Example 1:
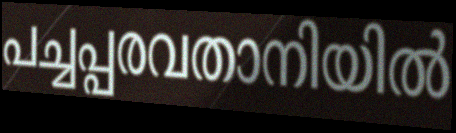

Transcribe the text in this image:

പച്ചപ്പരവതാനിയിൽ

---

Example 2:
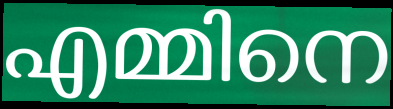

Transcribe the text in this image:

എമ്മിനെ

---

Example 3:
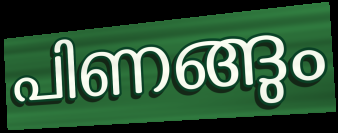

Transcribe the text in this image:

പിണങ്ങും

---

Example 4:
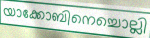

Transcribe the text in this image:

യാക്കോബിനെച്ചൊല്ലി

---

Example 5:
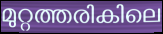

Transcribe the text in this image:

മുറ്റത്തരികിലെ